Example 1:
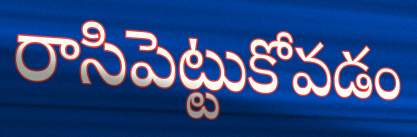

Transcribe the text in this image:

రాసిపెట్టుకోవడం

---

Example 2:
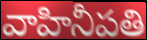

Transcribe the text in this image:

వాహినీపతి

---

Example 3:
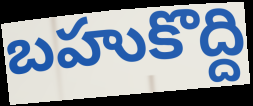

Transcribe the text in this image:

బహుకొద్ది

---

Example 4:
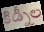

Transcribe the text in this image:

కిడ్నీల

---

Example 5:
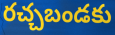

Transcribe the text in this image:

రచ్చబండకు